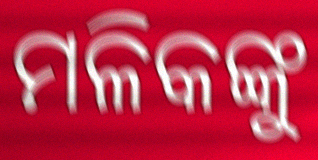
ମଳିକଙ୍କୁ